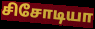
சிசோடியா